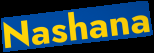
Nashana